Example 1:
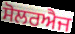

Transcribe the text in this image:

ਸੋਲਰਐਜ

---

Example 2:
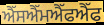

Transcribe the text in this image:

ਐੱਸਐੱਮਐੱਫਐੱਫ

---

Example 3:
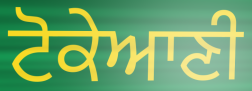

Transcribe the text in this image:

ਟੋਕੇਆਣੀ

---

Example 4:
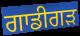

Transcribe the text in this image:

ਗਾਡੀਗੜ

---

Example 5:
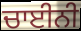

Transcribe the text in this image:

ਚਾਈਨੀ